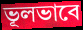
ভূলভাবে